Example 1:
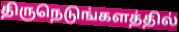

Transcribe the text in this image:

திருநெடுங்களத்தில்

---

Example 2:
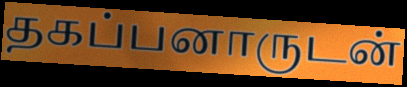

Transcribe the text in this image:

தகப்பனாருடன்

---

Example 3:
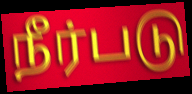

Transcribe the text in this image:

நீர்படு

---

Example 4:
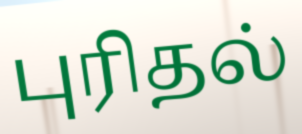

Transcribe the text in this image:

புரிதல்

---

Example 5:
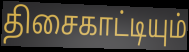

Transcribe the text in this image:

திசைகாட்டியும்